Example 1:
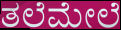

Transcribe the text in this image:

ತಲೆಮೇಲೆ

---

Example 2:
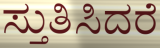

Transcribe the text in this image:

ಸ್ತುತಿಸಿದರೆ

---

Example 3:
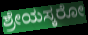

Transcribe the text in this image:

ಶ್ರೇಯಸ್ಕರೋ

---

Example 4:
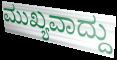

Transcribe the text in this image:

ಮುಖ್ಯವಾದ್ದು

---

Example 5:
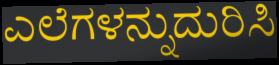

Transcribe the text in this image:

ಎಲೆಗಳನ್ನುದುರಿಸಿ